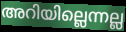
അറിയില്ലെന്നല്ല